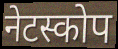
नेटस्कोप